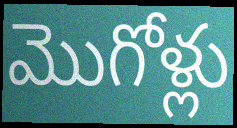
మొగోళ్లు